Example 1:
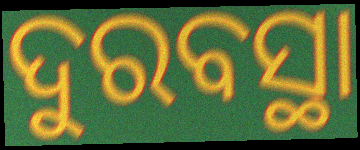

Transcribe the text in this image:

ଦୁରବସ୍ଥା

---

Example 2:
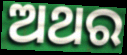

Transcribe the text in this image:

ଅଥର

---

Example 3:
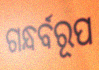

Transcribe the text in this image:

ଗନ୍ଧର୍ବରୂପ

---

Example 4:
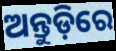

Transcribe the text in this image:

ଅନ୍ତୁଡ଼ିରେ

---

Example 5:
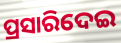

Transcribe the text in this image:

ପ୍ରସାରିଦେଇ